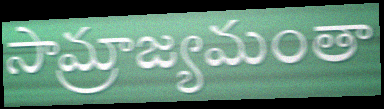
సామ్రాజ్యమంతా